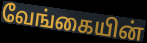
வேங்கையின்